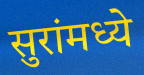
सुरांमध्ये